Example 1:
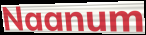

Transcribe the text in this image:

Naanum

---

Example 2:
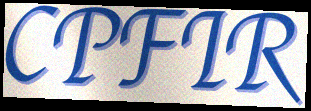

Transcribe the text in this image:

CPFIR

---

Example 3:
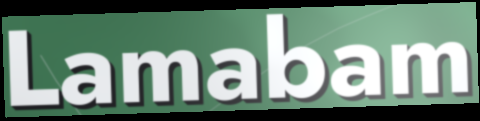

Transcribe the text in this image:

Lamabam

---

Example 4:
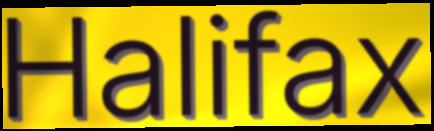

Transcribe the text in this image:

Halifax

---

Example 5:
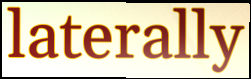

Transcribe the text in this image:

laterally